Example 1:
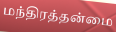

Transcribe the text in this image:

மந்திரத்தன்மை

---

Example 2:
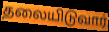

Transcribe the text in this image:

தலையிடுவார்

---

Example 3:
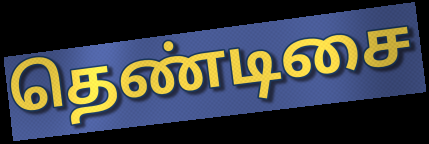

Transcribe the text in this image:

தெண்டிசை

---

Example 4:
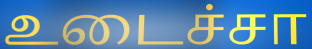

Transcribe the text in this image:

உடைச்சா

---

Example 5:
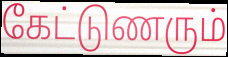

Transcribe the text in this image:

கேட்டுணரும்